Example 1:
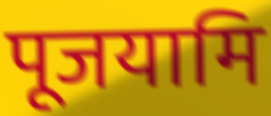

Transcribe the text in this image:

पूजयामि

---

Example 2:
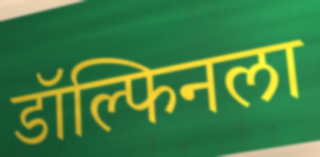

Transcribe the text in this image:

डॉल्फिनला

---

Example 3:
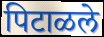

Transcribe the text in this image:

पिटाळले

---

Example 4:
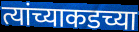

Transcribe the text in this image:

त्यांच्याकडच्या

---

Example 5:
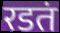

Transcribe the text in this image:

रडतं